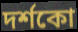
দৰ্শকো